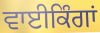
ਵਾਈਕਿੰਗਾਂ